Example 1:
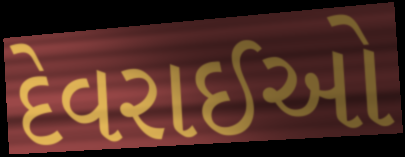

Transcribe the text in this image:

દેવરાઈઓ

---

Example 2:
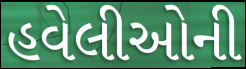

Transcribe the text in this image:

હવેલીઓની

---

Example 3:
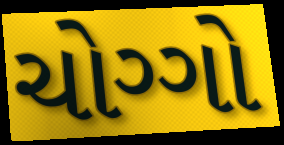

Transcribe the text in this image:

ચોગ્ગો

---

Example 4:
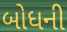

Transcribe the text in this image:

બોધની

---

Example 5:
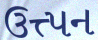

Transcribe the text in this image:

ઉત્ત્પન